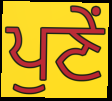
ਪੁਣੇਂ